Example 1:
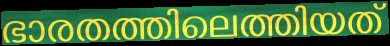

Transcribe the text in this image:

ഭാരതത്തിലെത്തിയത്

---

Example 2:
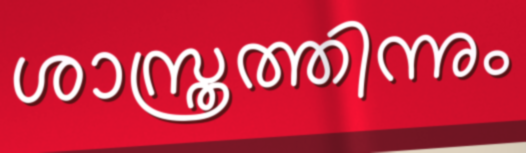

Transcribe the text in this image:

ശാസ്ത്രത്തിന്നും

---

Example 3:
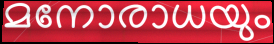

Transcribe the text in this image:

മനോരാധയും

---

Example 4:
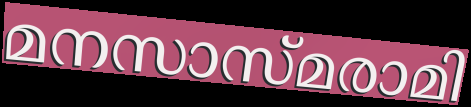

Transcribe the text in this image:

മനസാസ്മരാമി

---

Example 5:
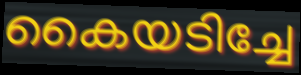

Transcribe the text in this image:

കൈയടിച്ചേ